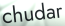
chudar